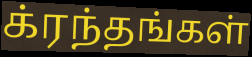
க்ரந்தங்கள்